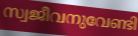
സ്വജീവനുവേണ്ടി